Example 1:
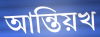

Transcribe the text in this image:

আন্তিয়খ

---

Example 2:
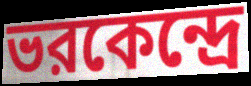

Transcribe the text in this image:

ভরকেন্দ্রে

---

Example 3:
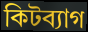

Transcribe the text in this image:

কিটব্যাগ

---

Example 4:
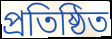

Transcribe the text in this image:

প্রতিষ্ঠিত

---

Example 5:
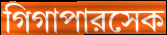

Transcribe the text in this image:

গিগাপারসেক